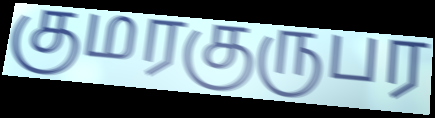
குமரகுருபர